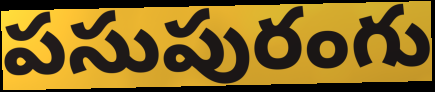
పసుపురంగు